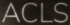
ACLS